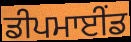
ਡੀਪਮਾਈਂਡ